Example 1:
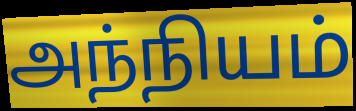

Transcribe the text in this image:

அந்நியம்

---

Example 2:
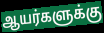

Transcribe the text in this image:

ஆயர்களுக்கு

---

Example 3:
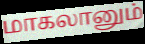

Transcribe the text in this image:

மாகலானும்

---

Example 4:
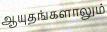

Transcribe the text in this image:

ஆயுதங்களாலும்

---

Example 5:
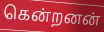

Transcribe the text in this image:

கென்றனன்